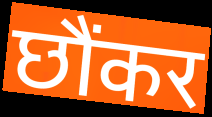
छौंकर